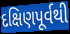
દક્ષિણપૂર્વથી